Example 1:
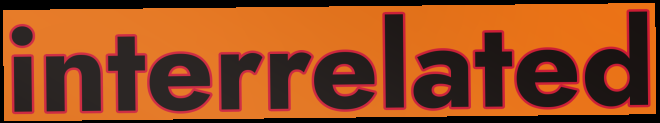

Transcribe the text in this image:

interrelated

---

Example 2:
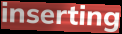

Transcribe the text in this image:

inserting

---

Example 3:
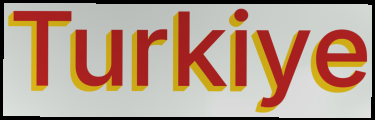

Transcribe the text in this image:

Turkiye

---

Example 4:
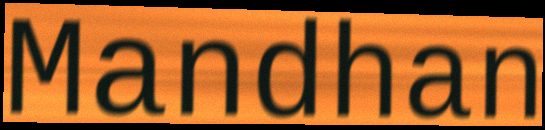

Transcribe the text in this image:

Mandhan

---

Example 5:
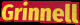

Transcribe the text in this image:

Grinnell